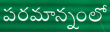
పరమాన్నంలో